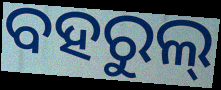
ବହରୁଲ୍